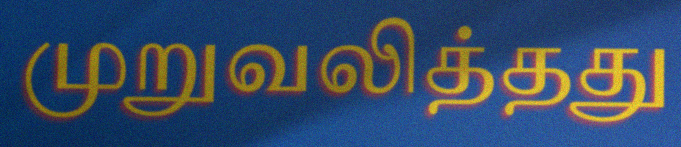
முறுவலித்தது